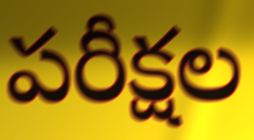
పరీక్షల